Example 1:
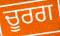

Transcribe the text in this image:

ਚੂਰਗ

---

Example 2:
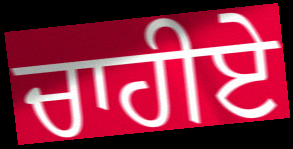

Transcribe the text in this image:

ਚਾਹੀਏ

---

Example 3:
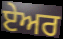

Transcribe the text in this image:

ਏੇਅਰ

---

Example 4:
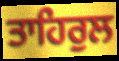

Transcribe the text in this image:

ਤਾਹਿਰੁਲ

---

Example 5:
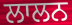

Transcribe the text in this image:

ਲਾਲਨ